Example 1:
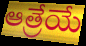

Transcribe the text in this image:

ఆత్రేయే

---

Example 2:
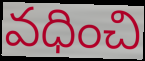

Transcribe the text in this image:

వధించి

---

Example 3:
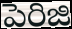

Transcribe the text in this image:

పెరిజి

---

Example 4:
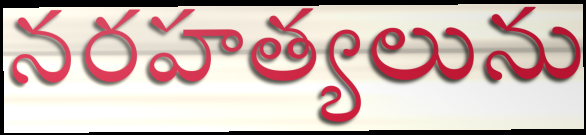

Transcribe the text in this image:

నరహత్యలును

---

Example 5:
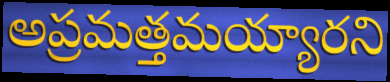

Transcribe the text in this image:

అప్రమత్తమయ్యారని